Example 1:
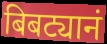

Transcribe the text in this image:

बिबट्यानं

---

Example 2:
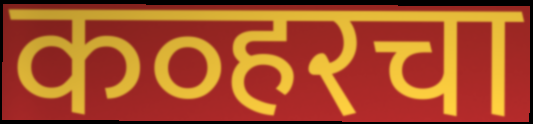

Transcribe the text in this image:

कव्हरचा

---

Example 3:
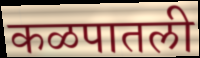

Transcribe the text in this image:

कळपातली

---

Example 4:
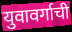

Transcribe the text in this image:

युवावर्गाची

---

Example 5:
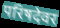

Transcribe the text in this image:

परिषदेवर